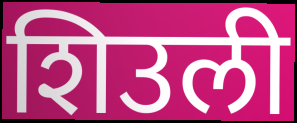
शिउली